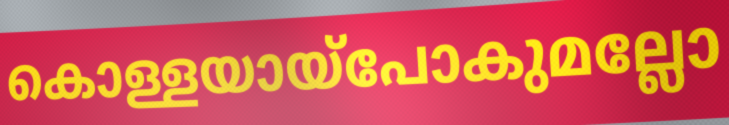
കൊള്ളയായ്പോകുമല്ലോ